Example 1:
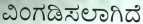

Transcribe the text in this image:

ವಿಂಗಡಿಸಲಾಗಿದೆ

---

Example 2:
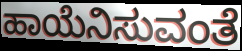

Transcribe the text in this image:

ಹಾಯೆನಿಸುವಂತೆ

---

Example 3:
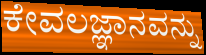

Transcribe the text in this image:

ಕೇವಲಜ್ಞಾನವನ್ನು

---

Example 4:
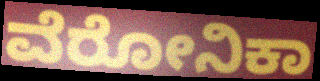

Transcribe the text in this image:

ವೆರೋನಿಕಾ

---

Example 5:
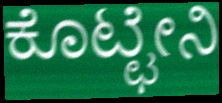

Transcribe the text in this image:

ಕೊಟ್ಟೇನಿ